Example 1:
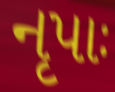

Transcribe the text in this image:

નૃપાઃ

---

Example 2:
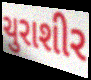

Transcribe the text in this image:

ચુરાશીર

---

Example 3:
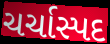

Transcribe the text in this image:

ચર્ચાસ્પદ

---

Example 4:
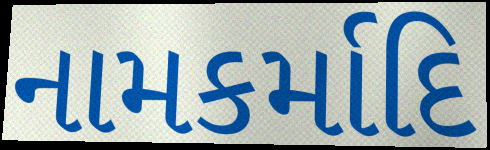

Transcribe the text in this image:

નામકર્માદિ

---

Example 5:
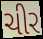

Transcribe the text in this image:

ચીર